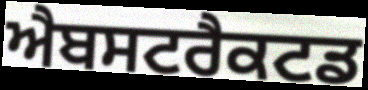
ਐਬਸਟਰੈਕਟਡ